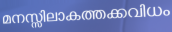
മനസ്സിലാകത്തക്കവിധം